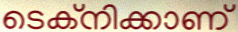
ടെക്നിക്കാണ്